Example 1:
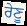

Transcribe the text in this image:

ਰੇਣੂ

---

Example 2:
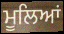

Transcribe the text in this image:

ਮੂਲਿਆਂ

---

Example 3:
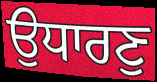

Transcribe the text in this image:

ਉਧਾਰਣੁ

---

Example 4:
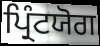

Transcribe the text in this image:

ਪ੍ਰਿੰਟਯੋਗ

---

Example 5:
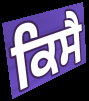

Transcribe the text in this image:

ਕਿਸੈ